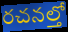
రచనల్తో